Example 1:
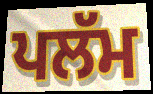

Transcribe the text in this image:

ਪਲੱਮ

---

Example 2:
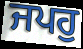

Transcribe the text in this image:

ਜਪਹੁ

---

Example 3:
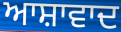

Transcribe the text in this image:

ਆਸ਼ਾਵਾਦ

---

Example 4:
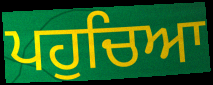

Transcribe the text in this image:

ਪਹੁਚਿਆ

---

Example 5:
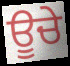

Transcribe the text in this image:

ਊਚੇ